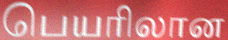
பெயரிலான